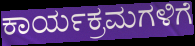
ಕಾರ್ಯಕ್ರಮಗಳಿಗೆ